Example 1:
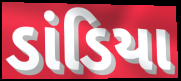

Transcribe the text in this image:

ડાંડિયા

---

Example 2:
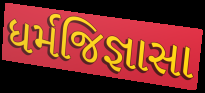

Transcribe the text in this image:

ધર્મજિજ્ઞાસા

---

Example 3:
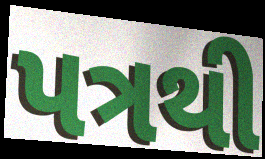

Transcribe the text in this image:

પત્રથી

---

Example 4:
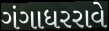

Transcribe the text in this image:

ગંગાધરરાવે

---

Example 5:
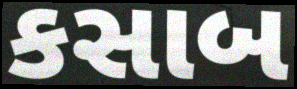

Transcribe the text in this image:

કસાબ